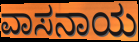
ವಾಸನಾಯ